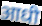
आधी